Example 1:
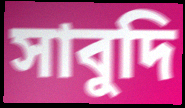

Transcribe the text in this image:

সাবুদি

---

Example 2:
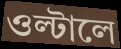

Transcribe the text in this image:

ওল্টালে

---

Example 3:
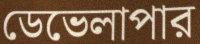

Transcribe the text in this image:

ডেভেলাপার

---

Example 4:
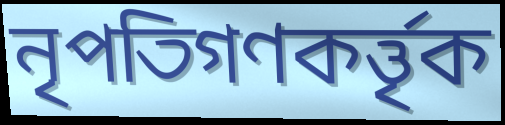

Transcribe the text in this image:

নৃপতিগণকর্ত্তৃক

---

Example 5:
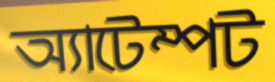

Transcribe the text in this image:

অ্যাটেম্পট